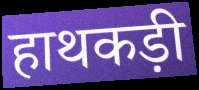
हाथकड़ी